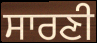
ਸਾਰਣੀ